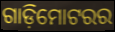
ଗାଡ଼ିମୋଟରର